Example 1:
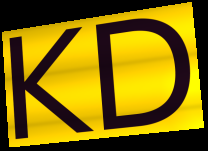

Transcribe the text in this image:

KD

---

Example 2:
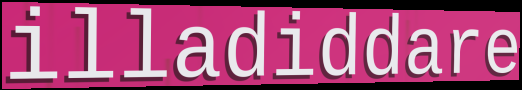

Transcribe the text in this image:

illadiddare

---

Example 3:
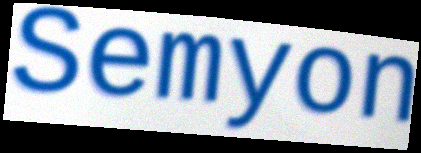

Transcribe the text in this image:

Semyon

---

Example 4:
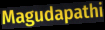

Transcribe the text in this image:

Magudapathi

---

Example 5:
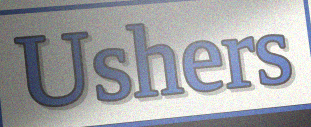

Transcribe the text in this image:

Ushers